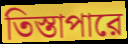
তিস্তাপারে